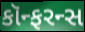
કૉન્ફરન્સ